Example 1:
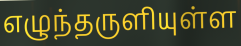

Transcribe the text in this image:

எழுந்தருளியுள்ள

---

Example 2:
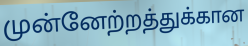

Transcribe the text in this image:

முன்னேற்றத்துக்கான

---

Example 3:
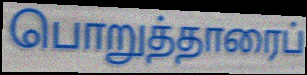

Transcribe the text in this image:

பொறுத்தாரைப்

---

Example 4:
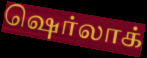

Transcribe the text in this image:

ஷெர்லாக்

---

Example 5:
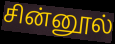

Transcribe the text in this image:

சின்னூல்